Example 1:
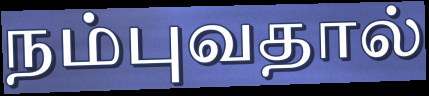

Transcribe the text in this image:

நம்புவதால்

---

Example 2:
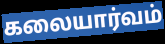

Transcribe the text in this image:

கலையார்வம்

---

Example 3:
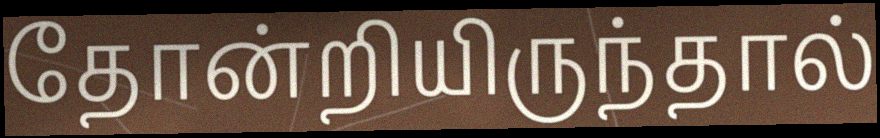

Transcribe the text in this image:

தோன்றியிருந்தால்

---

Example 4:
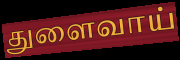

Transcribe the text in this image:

துளைவாய்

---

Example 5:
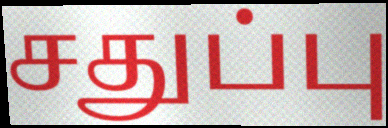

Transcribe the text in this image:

சதுப்பு